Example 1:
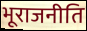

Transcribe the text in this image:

भूराजनीति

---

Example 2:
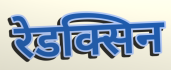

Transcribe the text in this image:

रेडक्सिन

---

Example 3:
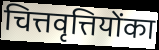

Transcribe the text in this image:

चित्तवृत्तियोंका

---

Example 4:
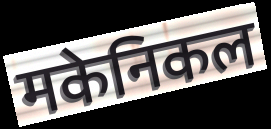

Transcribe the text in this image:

मकेनिकल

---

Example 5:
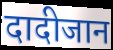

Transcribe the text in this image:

दादीजान